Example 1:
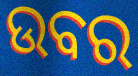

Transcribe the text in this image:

ଉବର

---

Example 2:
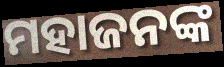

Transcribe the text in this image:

ମହାଜନଙ୍କ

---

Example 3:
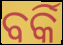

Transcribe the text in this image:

ବର୍କି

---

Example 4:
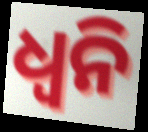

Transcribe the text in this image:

ଧ୍ବନି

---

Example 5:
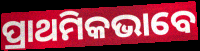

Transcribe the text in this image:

ପ୍ରାଥମିକଭାବେ